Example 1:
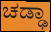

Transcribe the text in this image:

ಚಡ್ಢಾ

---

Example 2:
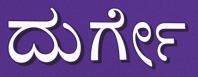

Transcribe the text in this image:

ದುರ್ಗೇ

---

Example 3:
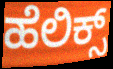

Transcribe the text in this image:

ಹೆಲಿಕ್ಸ್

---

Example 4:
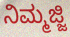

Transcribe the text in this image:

ನಿಮ್ಮಜ್ಜಿ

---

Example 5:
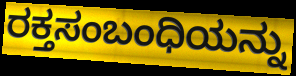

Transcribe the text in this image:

ರಕ್ತಸಂಬಂಧಿಯನ್ನು